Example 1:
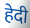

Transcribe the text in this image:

हेदी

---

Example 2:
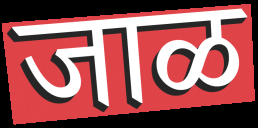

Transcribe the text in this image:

जाळ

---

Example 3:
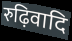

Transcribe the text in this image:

रुढ़िवादि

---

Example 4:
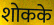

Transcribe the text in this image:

शोकके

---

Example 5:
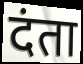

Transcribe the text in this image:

दंता